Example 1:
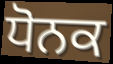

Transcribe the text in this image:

ਧੋਨਕ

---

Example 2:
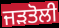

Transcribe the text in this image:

ਜੜਤੋਲੀ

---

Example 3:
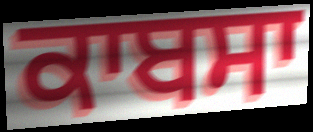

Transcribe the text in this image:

ਕਾਬਸਾ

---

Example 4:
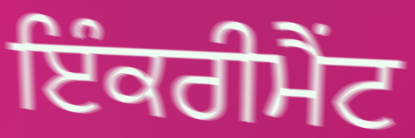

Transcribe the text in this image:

ਇੰਕਰੀਮੈਂਟ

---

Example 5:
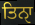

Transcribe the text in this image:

ਤਿਨੑਾ